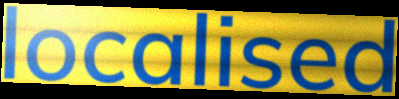
localised